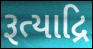
રૂત્યાદ્રિ